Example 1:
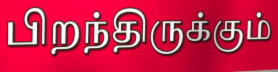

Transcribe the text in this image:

பிறந்திருக்கும்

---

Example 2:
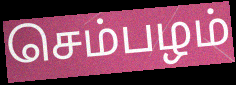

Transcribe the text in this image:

செம்பழம்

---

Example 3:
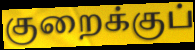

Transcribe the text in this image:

குறைக்குப்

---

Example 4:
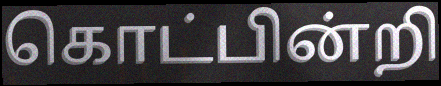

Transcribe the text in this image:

கொட்பின்றி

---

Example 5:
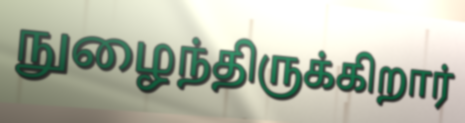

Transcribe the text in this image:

நுழைந்திருக்கிறார்